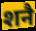
शनै